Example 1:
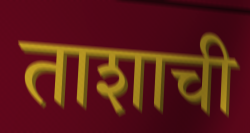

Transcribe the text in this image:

ताशाची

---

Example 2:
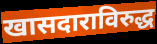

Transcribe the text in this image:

खासदाराविरुद्ध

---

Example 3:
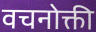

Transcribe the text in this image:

वचनोक्ती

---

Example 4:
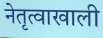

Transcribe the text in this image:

नेतृत्वाखाली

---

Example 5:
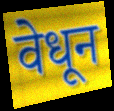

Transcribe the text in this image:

वेधून